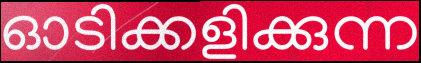
ഓടിക്കളിക്കുന്ന